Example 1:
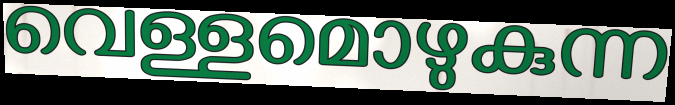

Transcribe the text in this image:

വെള്ളമൊഴുകുന്ന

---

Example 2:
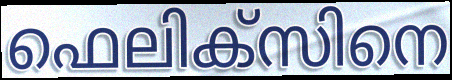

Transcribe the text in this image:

ഫെലിക്സിനെ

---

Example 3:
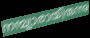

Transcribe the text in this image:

നമ്പ്യാരായിരുന്നു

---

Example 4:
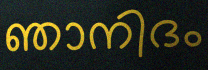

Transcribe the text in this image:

ഞാനിദം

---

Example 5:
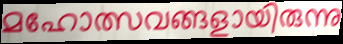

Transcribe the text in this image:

മഹോത്സവങ്ങളായിരുന്നു